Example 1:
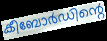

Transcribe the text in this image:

കീബോർഡിന്റെ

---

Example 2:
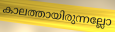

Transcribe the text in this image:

കാലത്തായിരുന്നല്ലോ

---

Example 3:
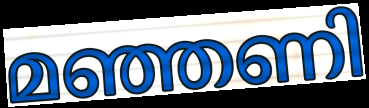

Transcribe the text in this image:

മഞ്ഞണി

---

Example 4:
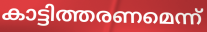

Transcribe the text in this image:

കാട്ടിത്തരണമെന്ന്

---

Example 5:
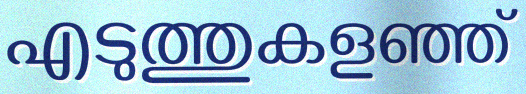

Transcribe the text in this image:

എടുത്തുകളഞ്ഞ്